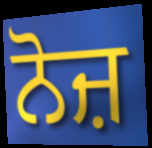
ਨੋਜ਼